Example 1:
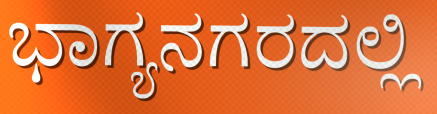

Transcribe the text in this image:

ಭಾಗ್ಯನಗರದಲ್ಲಿ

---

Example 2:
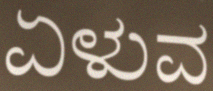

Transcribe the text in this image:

ಏಳುವ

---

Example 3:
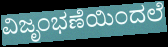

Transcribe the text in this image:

ವಿಜೃಂಭಣೆಯಿಂದಲೆ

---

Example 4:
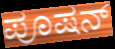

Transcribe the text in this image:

ಪೂಷನ್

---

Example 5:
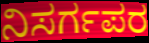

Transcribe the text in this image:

ನಿಸರ್ಗಪರ